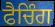
ਫੈਚਿੰਗ